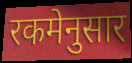
रकमेनुसार